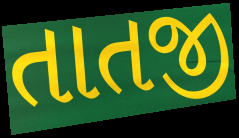
તાતજી